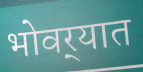
भोवर्यात